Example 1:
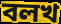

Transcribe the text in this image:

বলখ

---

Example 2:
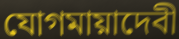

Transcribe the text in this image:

যোগমায়াদেবী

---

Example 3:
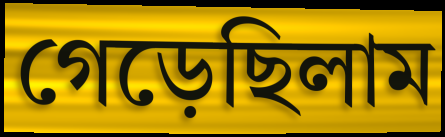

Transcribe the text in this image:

গেড়েছিলাম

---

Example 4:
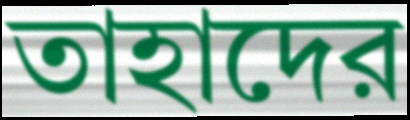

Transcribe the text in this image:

তাহাদের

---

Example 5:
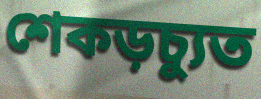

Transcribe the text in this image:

শেকড়চ্যুত